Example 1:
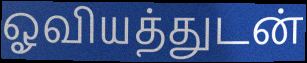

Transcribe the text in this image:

ஓவியத்துடன்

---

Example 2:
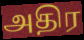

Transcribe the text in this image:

அதிர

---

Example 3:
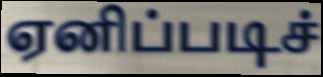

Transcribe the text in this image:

ஏனிப்படிச்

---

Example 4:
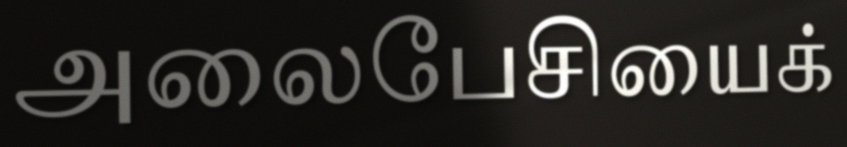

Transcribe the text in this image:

அலைபேசியைக்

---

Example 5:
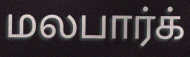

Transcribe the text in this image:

மலபார்க்